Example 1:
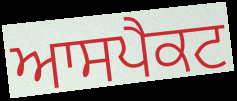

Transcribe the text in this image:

ਆਸਪੈਕਟ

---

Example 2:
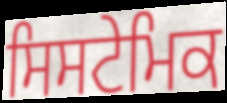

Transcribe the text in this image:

ਸਿਸਟੇਮਿਕ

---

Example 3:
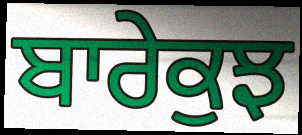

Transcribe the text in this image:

ਬਾਰੇਕੁਝ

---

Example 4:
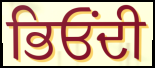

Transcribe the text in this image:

ਭਿਓਂਦੀ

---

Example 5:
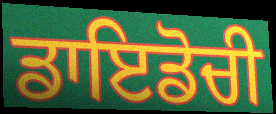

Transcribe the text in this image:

ਡਾਇਡੋਚੀ